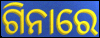
ଗିନାରେ